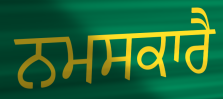
ਨਮਸਕਾਰੈ